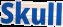
Skull